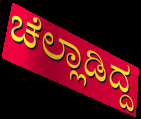
ಚೆಲ್ಲಾಡಿದ್ದ